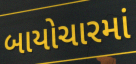
બાયોચારમાં